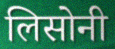
लिसोनी